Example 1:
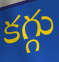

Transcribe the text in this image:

కగ్గు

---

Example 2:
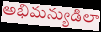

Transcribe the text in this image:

అభిమన్యుడిలా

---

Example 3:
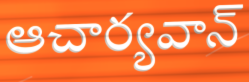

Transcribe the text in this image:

ఆచార్యవాన్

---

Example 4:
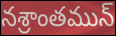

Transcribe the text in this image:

నశ్రాంతమున్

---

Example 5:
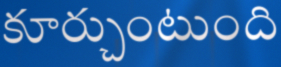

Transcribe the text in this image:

కూర్చుంటుంది